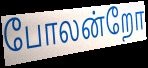
போலன்றோ